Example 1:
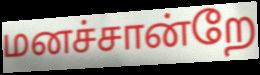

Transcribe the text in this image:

மனச்சான்றே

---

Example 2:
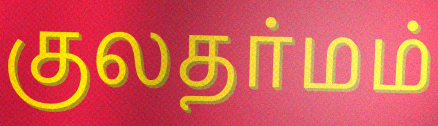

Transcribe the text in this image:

குலதர்மம்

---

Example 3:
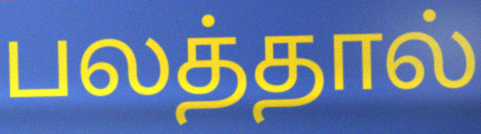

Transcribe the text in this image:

பலத்தால்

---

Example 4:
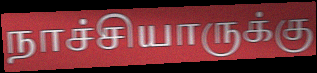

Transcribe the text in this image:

நாச்சியாருக்கு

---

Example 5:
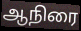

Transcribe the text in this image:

ஆநிரை